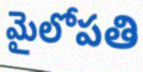
మైలోపతి